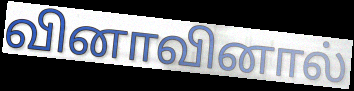
வினாவினால்